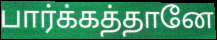
பார்க்கத்தானே